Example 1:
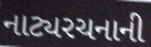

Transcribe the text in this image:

નાટ્યરચનાની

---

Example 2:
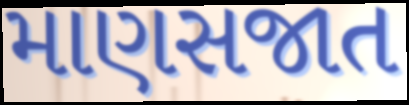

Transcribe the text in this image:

માણસજાત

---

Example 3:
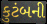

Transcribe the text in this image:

કુટંબની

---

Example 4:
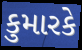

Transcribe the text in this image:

કુમારકે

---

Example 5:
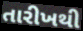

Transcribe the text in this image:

તારીખથી